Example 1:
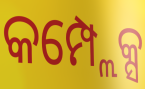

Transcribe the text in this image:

କମ୍ପ୍ଲେକ୍ସ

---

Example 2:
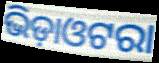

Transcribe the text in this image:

ଭିଡ଼ାଓଟରା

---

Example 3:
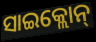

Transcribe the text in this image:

ସାଇକ୍ଲୋନ୍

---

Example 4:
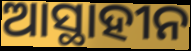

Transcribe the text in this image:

ଆସ୍ଥାହୀନ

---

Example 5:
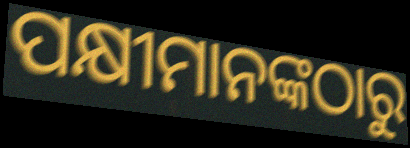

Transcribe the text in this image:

ପକ୍ଷୀମାନଙ୍କଠାରୁ